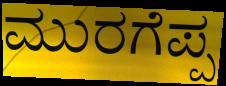
ಮುರಗೆಪ್ಪ